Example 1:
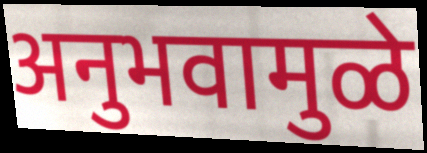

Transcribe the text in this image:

अनुभवामुळे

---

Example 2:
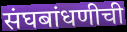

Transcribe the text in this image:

संघबांधणीची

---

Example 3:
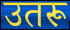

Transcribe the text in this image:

उतरू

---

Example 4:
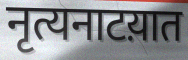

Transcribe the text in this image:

नृत्यनाटय़ात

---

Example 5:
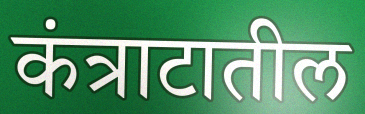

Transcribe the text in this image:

कंत्राटातील